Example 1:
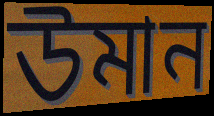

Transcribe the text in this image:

উমান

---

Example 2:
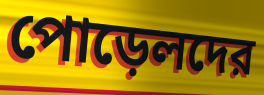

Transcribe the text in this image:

পোড়েলদের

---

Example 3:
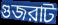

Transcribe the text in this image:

গুজরাট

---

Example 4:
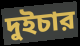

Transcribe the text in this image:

দুইচার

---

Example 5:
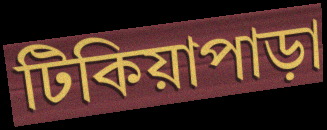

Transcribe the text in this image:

টিকিয়াপাড়া